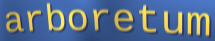
arboretum